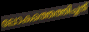
ലോകത്തെത്തിച്ചത്